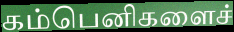
கம்பெனிகளைச்